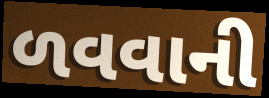
ળવવાની